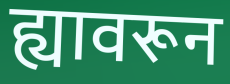
ह्यावरून